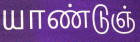
யாண்டுஞ்